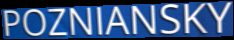
POZNIANSKY